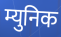
म्युनिक